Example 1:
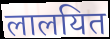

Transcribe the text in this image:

लालयित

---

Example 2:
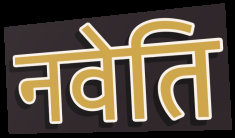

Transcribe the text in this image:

नवेति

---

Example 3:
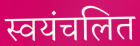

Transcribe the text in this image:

स्वयंचलित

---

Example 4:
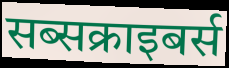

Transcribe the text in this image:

सब्सक्राइबर्स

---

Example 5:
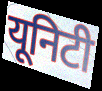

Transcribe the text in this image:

यूनिटी